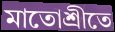
মাতোশ্রীতে